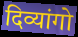
दिव्यांगो